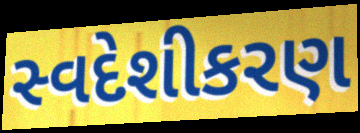
સ્વદેશીકરણ